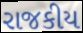
રાજકીય